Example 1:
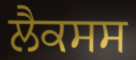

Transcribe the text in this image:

ਲੈਕਸਸ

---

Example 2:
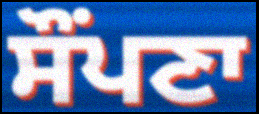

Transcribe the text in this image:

ਸੌਂਪਣਾ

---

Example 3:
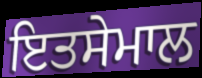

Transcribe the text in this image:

ਇਤਸੇਮਾਲ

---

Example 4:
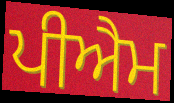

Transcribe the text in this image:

ਪੀਐਮ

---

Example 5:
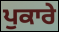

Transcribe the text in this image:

ਪੁਕਾਰੇ